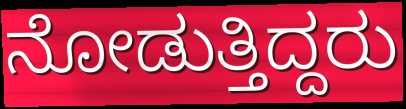
ನೋಡುತ್ತಿದ್ದರು